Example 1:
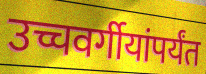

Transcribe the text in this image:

उच्चवर्गीयांपर्यंत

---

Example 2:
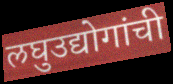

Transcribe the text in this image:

लघुउद्योगांची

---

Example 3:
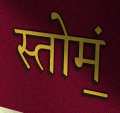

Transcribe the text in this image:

स्तोमं॒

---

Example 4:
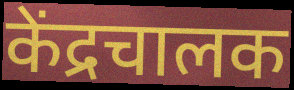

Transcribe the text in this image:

केंद्रचालक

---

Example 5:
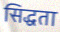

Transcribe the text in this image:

सिद्धता